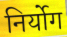
निर्योग